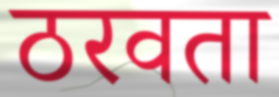
ठरवता